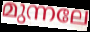
മുന്നലേ